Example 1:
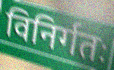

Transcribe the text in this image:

विनिर्गतः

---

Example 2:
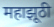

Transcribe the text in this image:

महाझूठी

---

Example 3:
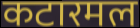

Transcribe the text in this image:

कटारमल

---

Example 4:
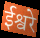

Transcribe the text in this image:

ईश्वरे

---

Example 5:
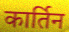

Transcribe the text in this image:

कार्तिन